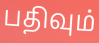
பதிவும்